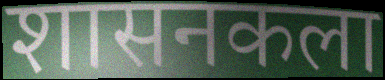
शासनकला